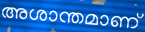
അശാന്തമാണ്